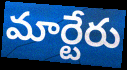
మార్టేరు